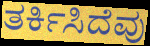
ತರ್ಕಿಸಿದೆವು